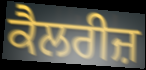
ਕੈਲਰੀਜ਼